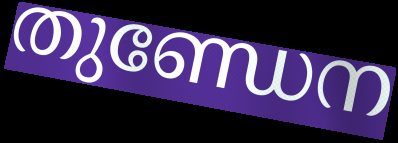
തുണ്ഡേന